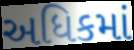
અધિકમાં